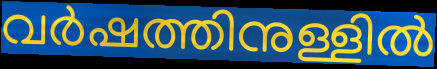
വർഷത്തിനുള്ളിൽ